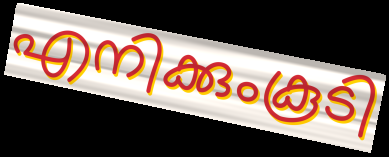
എനിക്കുംകൂടി